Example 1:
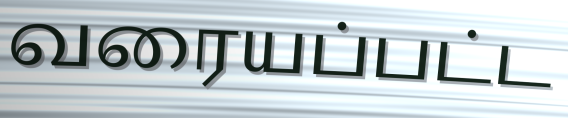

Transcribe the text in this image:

வரையப்பட்ட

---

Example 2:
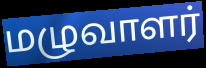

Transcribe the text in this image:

மழுவாளர்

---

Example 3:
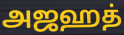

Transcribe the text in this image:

அஜஹத்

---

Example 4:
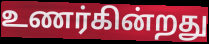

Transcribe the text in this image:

உணர்கின்றது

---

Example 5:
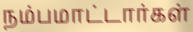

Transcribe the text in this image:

நம்பமாட்டார்கள்